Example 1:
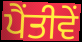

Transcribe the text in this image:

ਪੈਂਤੀਵੇਂ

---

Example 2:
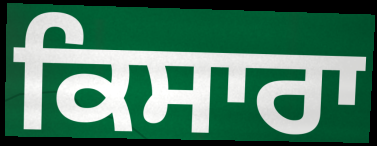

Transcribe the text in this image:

ਕਿਸਾਰਾ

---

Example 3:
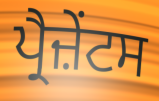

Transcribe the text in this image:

ਪ੍ਰੈਜ਼ੇਂਟਸ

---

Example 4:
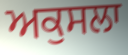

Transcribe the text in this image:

ਅਕੁਸਲਾ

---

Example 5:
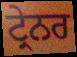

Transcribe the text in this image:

ਟ੍ਰੇਨਰ